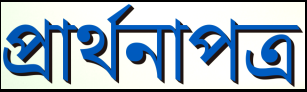
প্রার্থনাপত্র